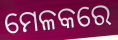
ମେଳକରେ